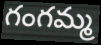
గంగమ్మ